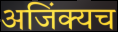
अजिंक्यच